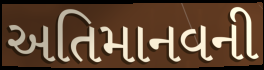
અતિમાનવની